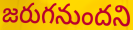
జరుగనుందని